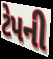
ટેપની